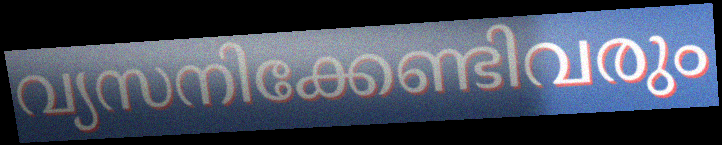
വ്യസനിക്കേണ്ടിവരും